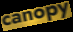
canopy